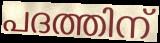
പദത്തിന്